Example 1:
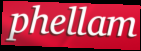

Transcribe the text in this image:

phellam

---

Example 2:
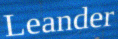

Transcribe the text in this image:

Leander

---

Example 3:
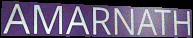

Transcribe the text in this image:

AMARNATH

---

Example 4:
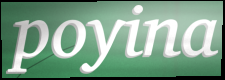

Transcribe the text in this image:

poyina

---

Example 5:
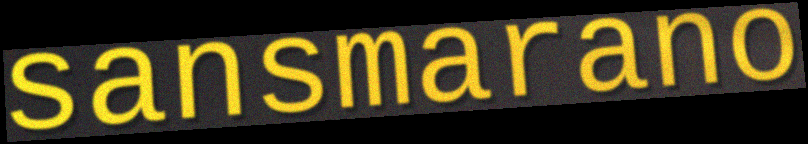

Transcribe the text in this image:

sansmarano